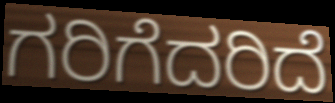
ಗರಿಗೆದರಿದೆ